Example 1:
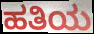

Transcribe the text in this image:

ಹತಿಯ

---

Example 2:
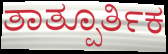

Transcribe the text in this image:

ತಾತ್ಪೂರ್ತಿಕ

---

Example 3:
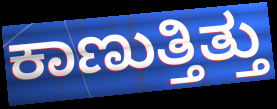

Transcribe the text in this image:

ಕಾಣುತ್ತಿತ್ತು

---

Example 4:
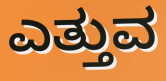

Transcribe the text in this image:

ಎತ್ತುವ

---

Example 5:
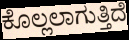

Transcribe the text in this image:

ಕೊಲ್ಲಲಾಗುತ್ತಿದೆ